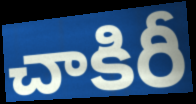
చాకిరీ